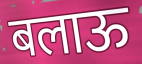
बलाऊ